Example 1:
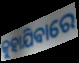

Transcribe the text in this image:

କୁହାଯିଵାରେ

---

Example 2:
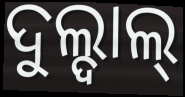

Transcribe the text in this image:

ଦୁଲ୍ଦାଲ୍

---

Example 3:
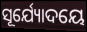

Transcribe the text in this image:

ସୂର୍ଯ୍ୟୋଦୟେ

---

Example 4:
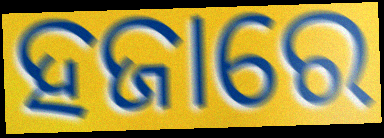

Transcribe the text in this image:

ହଜାରେ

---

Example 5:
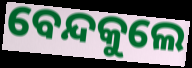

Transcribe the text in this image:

ବେନ୍ଦକୁଲେ